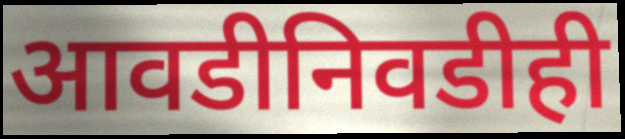
आवडीनिवडीही